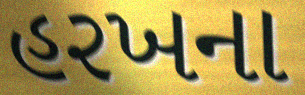
હરખના